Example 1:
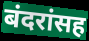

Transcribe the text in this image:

बंदरांसह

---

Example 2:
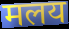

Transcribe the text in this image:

मलय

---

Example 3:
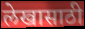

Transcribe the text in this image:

लेखासाठी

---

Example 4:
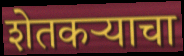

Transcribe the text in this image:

शेतकऱ्याचा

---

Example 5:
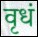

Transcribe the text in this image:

वृधं